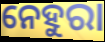
ନେହୁରା